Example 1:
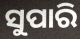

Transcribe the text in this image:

ସୁପାରି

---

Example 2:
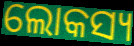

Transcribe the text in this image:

ଲୋକସ୍ୟ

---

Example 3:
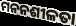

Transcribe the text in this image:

ମନନଶୀଳତା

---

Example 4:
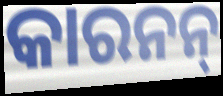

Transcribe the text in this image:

କାରନନ୍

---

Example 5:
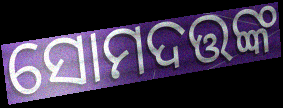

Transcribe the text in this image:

ସୋମଦତ୍ତଙ୍କ